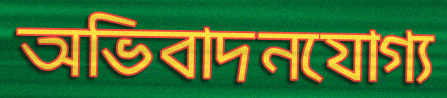
অভিবাদনযোগ্য